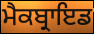
ਮੈਕਬ੍ਰਾਇਡ